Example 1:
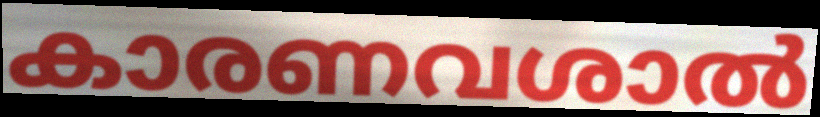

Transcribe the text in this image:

കാരണവശാൽ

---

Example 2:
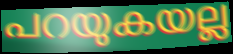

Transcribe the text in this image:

പറയുകയല്ല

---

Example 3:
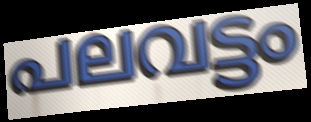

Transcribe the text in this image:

പലവട്ടം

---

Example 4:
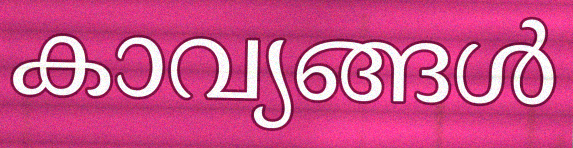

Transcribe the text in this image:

കാവ്യങ്ങൾ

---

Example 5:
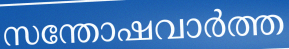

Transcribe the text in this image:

സന്തോഷവാർത്ത